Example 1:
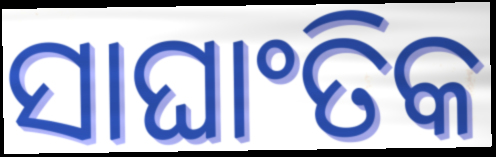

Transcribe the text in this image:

ସାଘାଂତିକ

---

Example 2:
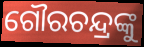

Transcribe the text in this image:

ଗୌରଚନ୍ଦ୍ରଙ୍କୁ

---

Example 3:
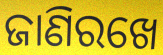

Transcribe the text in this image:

ଜାଣିରଖେ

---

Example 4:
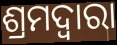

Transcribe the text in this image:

ଶ୍ରମଦ୍ଵାରା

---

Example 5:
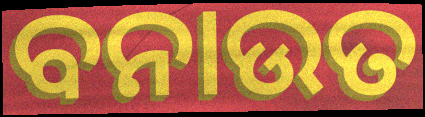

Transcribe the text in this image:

ବନାଉତ